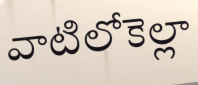
వాటిలోకెల్లా